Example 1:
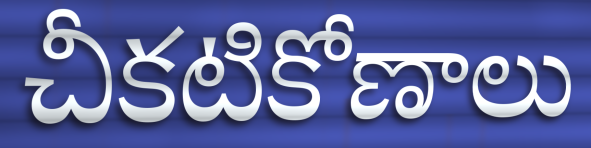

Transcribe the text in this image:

చీకటికోణాలు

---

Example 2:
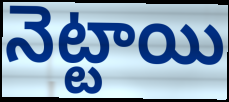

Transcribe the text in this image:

నెట్టాయి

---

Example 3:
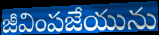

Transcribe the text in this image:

జీవింపజేయును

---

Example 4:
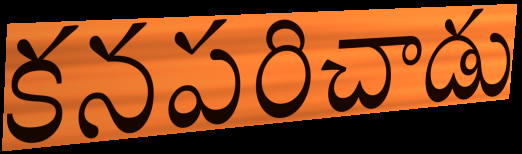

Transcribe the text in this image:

కనపరిచాడు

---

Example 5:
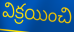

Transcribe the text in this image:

విక్రయించి